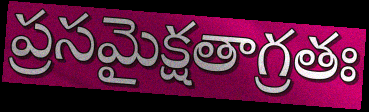
ప్రసమైక్షతాగ్రతః